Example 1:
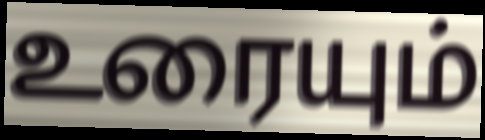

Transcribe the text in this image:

உரையும்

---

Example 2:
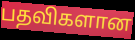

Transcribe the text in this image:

பதவிகளான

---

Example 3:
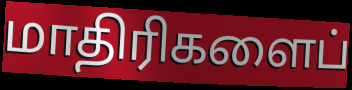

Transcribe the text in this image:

மாதிரிகளைப்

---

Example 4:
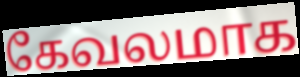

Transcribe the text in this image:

கேவலமாக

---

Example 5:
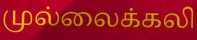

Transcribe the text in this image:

முல்லைக்கலி